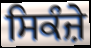
ਸਿਕੰਜ਼ੇ